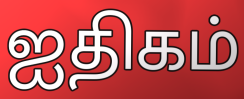
ஐதிகம்